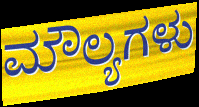
ಮೌಲ್ಯಗಳು